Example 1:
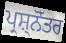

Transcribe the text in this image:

ਪ੍ਰਸ਼੍ਨੋੱਤਰ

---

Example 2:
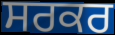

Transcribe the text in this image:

ਸਰਕਰ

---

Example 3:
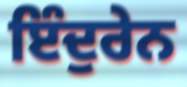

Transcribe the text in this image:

ਇੰਦੁਰੇਨ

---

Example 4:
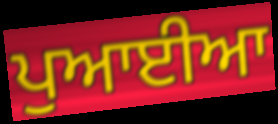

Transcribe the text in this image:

ਪੁਆਈਆ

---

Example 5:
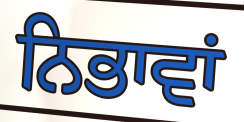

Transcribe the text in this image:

ਨਿਭਾਵਾਂ